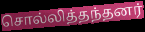
சொல்லித்தந்தனர்